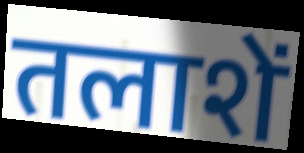
तलाशें